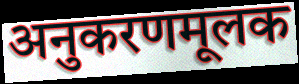
अनुकरणमूलक